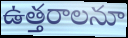
ఉత్తరాలనూ